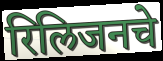
रिलिजनचे